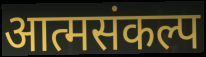
आत्मसंकल्प